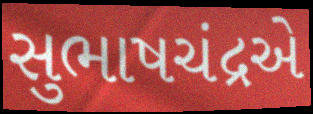
સુભાષચંદ્રએ